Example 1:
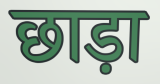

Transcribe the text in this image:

छाड़ा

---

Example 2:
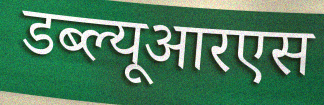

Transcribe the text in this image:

डब्ल्यूआरएस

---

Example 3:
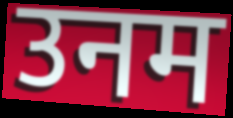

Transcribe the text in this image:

उनम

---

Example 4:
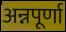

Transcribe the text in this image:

अन्नपूर्णा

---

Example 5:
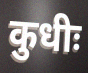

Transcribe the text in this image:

कुधीः